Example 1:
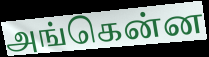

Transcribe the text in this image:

அங்கென்ன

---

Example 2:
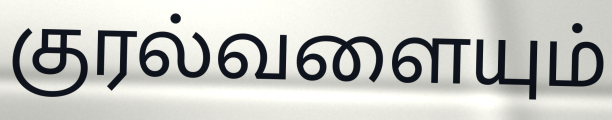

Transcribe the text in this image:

குரல்வளையும்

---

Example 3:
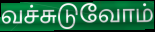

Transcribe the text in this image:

வச்சுடுவோம்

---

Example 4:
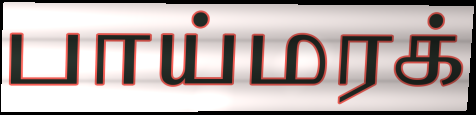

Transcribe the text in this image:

பாய்மரக்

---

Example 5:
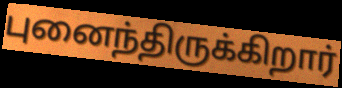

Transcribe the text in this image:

புனைந்திருக்கிறார்